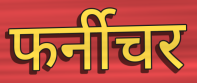
फर्नीचर